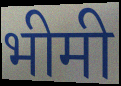
भीमी